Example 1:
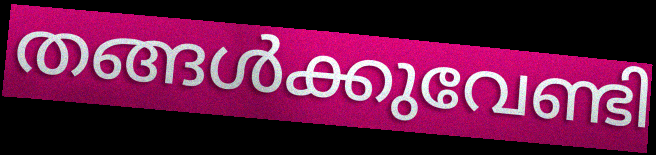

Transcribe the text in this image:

തങ്ങൾക്കുവേണ്ടി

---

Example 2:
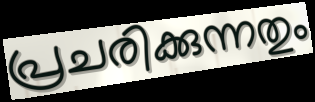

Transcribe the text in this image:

പ്രചരിക്കുന്നതും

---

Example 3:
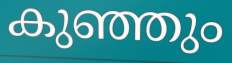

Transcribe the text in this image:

കുഞ്ഞും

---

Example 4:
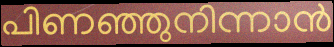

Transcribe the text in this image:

പിണഞ്ഞുനിന്നാൻ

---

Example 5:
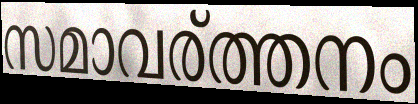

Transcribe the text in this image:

സമാവര്ത്തനം